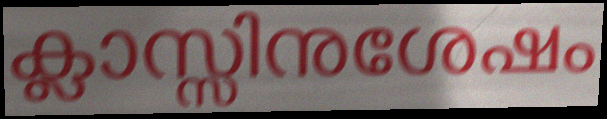
ക്ലാസ്സിനുശേഷം